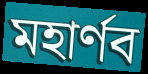
মহার্ণব